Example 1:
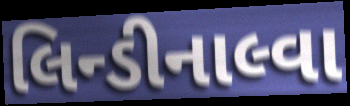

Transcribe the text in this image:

લિન્ડીનાલ્વા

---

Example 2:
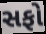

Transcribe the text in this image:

સફો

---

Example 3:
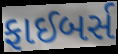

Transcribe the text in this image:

ફાઈબર્સ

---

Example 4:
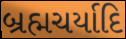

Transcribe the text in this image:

બ્રહ્મચર્યાદિ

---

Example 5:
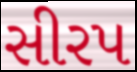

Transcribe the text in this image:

સીરપ